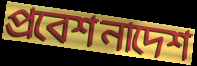
প্রবেশনাদেশ